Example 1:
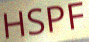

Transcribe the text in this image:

HSPF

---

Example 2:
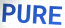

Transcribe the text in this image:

PURE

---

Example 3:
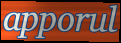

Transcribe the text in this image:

apporul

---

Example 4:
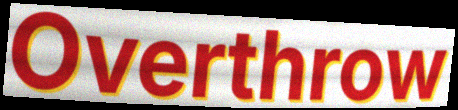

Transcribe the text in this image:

Overthrow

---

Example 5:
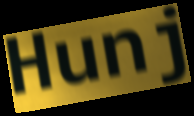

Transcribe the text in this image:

Hunj